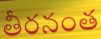
తీరనంత